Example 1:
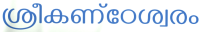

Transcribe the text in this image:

ശ്രീകണ്‌ഠേശ്വരം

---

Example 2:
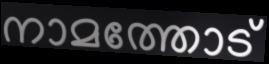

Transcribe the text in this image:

നാമത്തോട്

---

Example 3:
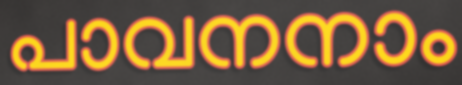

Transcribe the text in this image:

പാവനനാം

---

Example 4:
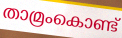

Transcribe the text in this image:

താമ്രംകൊണ്ട്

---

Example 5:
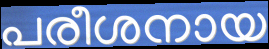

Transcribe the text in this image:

പരീശനായ